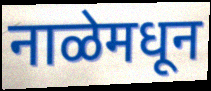
नाळेमधून